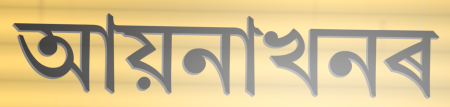
আয়নাখনৰ